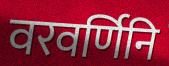
वरवर्णिनि